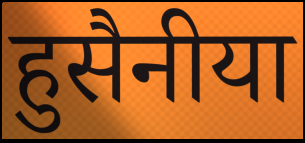
हुसैनीया